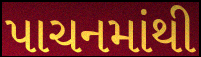
પાચનમાંથી